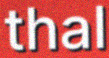
thal